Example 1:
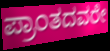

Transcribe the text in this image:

ಪ್ರಾಂತದವರೇ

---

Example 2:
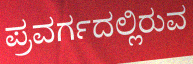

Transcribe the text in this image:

ಪ್ರವರ್ಗದಲ್ಲಿರುವ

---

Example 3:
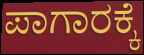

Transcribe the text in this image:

ಪಾಗಾರಕ್ಕೆ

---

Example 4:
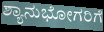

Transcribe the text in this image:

ಶ್ಯಾನುಭೋಗರಿಗೆ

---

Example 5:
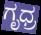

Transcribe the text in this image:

ಗೃಧ್ರ